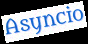
Asyncio